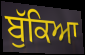
ਬੁੱਕਿਆ